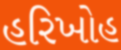
હરિખોહ